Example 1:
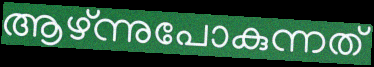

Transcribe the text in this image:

ആഴ്ന്നുപോകുന്നത്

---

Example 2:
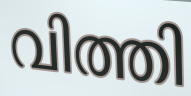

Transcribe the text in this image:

വിത്തി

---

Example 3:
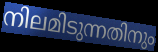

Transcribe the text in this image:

നിലമിടുന്നതിനും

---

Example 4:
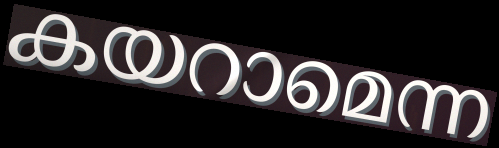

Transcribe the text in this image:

കയറാമെന്ന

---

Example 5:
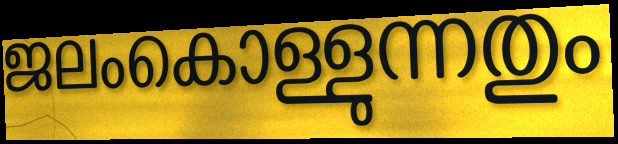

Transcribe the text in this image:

ജലംകൊള്ളുന്നതും